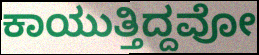
ಕಾಯುತ್ತಿದ್ದವೋ